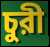
চুরী